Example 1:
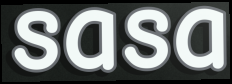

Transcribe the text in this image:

sasa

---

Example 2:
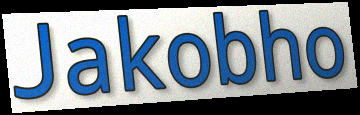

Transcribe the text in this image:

Jakobho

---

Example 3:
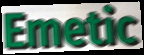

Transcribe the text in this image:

Emetic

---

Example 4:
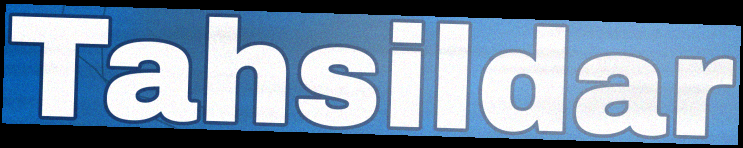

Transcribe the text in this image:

Tahsildar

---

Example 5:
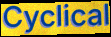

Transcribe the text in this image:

Cyclical